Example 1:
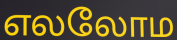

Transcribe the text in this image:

எலலோம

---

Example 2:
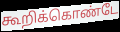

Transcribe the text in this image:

கூறிக்கொண்டே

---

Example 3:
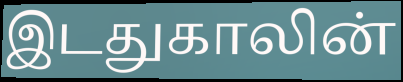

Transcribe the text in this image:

இடதுகாலின்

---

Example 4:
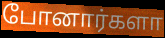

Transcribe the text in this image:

போனார்களா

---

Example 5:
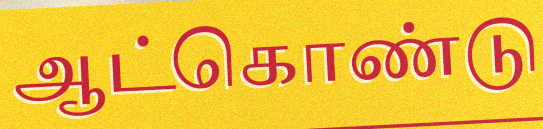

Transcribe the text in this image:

ஆட்கொண்டு